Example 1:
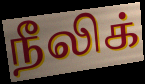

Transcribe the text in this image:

நீலிக்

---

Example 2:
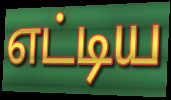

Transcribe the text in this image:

எட்டிய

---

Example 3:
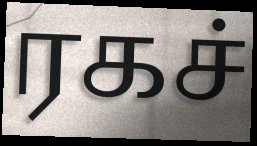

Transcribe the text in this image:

ரகச்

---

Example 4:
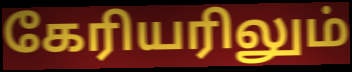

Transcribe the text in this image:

கேரியரிலும்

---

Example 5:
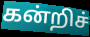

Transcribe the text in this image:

கன்றிச்